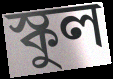
স্কুল